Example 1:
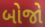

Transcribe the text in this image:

બોજો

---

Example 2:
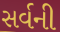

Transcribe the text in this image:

સર્વની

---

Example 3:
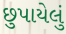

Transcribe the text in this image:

છુપાયેલું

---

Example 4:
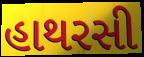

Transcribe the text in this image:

હાથરસી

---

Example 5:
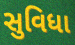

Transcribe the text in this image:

સુવિધા